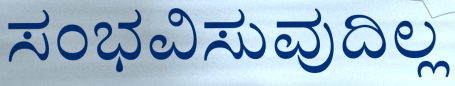
ಸಂಭವಿಸುವುದಿಲ್ಲ